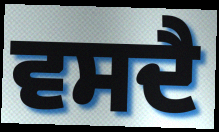
ਵਸਦੈ